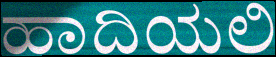
ಹಾದಿಯಲಿ